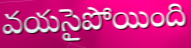
వయసైపోయింది